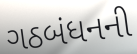
ગઠબંધનની